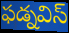
ఫడ్నవిస్